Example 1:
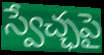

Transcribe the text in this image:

స్వేచ్ఛపై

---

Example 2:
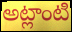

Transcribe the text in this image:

అట్లాంటి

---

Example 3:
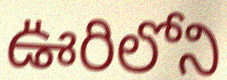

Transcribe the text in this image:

ఊరిలోని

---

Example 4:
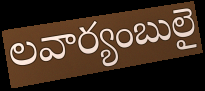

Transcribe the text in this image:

లవార్యంబులై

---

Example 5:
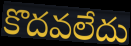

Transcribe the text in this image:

కొదవలేదు